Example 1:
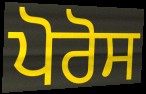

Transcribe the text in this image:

ਪੋਰੋਸ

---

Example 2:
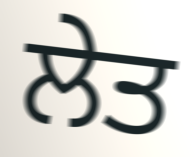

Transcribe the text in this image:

ਲੇਤ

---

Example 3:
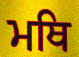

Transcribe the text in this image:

ਮਥਿ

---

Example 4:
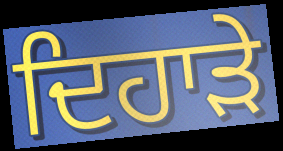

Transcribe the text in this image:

ਦਿਹਾਡ਼ੇ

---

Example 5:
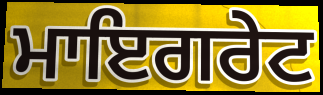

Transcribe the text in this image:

ਮਾਇਗਰੇਟ